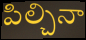
పిల్చినా